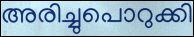
അരിച്ചുപൊറുക്കി